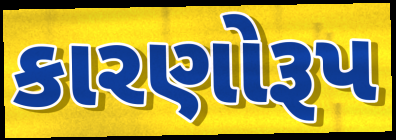
કારણોરૂપ